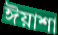
ঈয়াশা